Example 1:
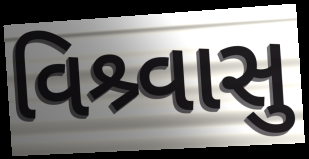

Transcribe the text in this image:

વિશ્ર્વાસુ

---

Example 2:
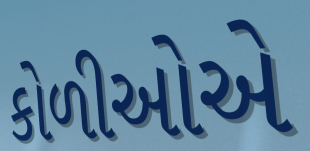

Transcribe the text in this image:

કોળીઓએ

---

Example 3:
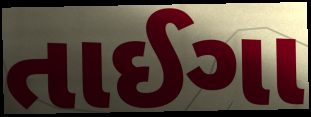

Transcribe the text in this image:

તાઈગા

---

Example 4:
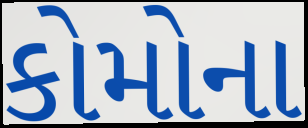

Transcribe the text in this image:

કોમોના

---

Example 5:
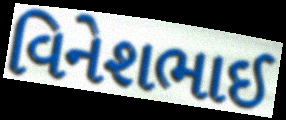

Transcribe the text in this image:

વિનેશભાઈ